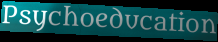
Psychoeducation